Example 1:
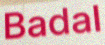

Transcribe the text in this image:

Badal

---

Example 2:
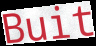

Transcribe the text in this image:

Buit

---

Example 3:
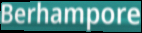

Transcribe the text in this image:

Berhampore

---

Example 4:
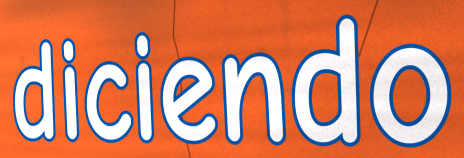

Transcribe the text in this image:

diciendo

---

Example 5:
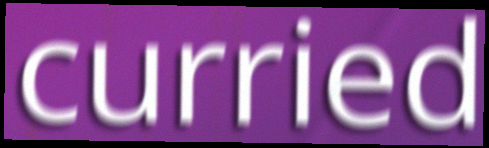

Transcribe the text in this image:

curried